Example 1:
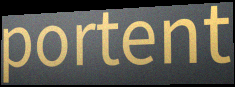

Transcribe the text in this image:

portent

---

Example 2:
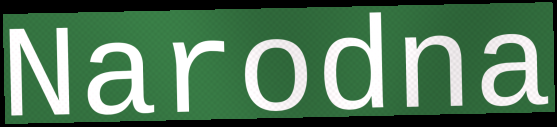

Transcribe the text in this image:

Narodna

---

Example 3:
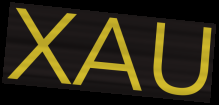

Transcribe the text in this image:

XAU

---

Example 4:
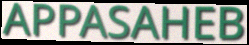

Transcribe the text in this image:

APPASAHEB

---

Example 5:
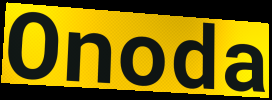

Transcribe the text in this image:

Onoda